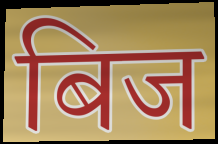
बिज